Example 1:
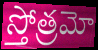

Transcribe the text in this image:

స్తోత్రమో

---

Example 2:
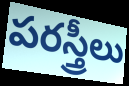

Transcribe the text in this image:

పరస్త్రీలు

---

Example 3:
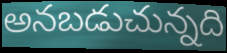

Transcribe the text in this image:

అనబడుచున్నది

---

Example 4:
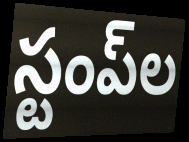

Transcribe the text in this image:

స్టంప్‌ల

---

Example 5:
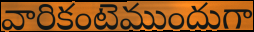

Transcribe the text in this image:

వారికంటెముందుగా